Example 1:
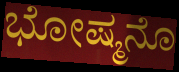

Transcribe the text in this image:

ಭೋಷ್ಮನೊ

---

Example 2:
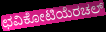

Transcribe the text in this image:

ಛವಿಕೋಟಿಯೆರಚಲ್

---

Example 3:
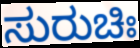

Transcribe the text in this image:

ಸುರುಚಿಃ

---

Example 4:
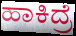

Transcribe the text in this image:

ಹಾಕಿದ್ರೆ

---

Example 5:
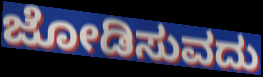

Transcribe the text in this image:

ಜೋಡಿಸುವದು